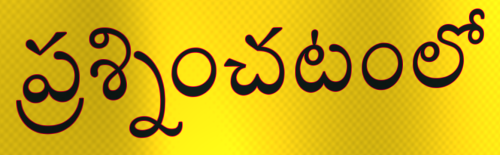
ప్రశ్నించటంలో